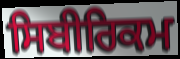
ਸਿਬੀਰਿਕਮ